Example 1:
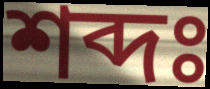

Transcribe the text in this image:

শব্দঃ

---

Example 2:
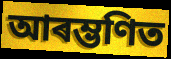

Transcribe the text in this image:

আৰম্ভণিত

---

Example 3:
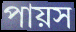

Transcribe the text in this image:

পায়স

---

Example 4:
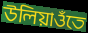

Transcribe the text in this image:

উলিয়াওঁতে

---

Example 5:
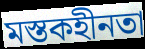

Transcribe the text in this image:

মস্তকহীনতা